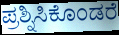
ಪ್ರಶ್ನಿಸಿಕೊಂಡರೆ